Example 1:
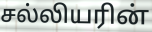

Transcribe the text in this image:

சல்லியரின்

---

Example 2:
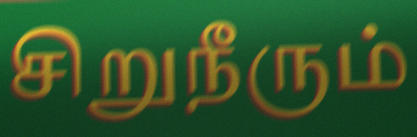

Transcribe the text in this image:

சிறுநீரும்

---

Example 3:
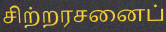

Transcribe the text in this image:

சிற்றரசனைப்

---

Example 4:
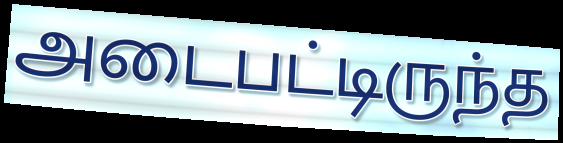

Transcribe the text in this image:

அடைபட்டிருந்த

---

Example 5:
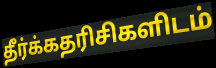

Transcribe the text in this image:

தீர்க்கதரிசிகளிடம்